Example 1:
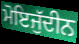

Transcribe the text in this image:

ਮੋਇਜੁੱਦੀਨ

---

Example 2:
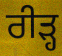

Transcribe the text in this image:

ਰੀੜ੍ਹ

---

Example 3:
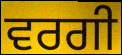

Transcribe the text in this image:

ਵਰਗੀ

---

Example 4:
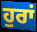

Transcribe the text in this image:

ਹੁਰਾਂ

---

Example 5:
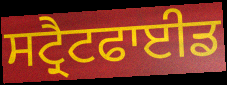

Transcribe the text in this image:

ਸਟ੍ਰੈਟਫਾਈਡ